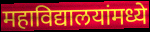
महाविद्यालयांमध्ये